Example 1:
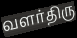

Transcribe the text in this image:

வளர்திரு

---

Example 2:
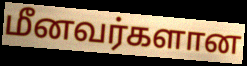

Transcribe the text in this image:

மீனவர்களான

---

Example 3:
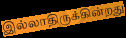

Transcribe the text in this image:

இல்லாதிருக்கின்றது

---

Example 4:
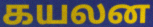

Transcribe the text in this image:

கயலன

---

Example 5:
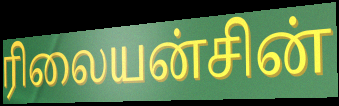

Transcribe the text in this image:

ரிலையன்சின்